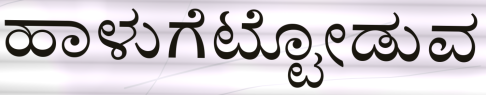
ಹಾಳುಗೆಟ್ಟೋಡುವ